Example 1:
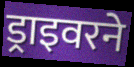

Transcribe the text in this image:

ड्राइवरने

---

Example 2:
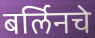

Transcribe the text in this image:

बर्लिनचे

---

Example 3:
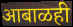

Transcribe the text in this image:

आबाळही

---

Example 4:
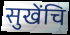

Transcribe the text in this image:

सुखेंचि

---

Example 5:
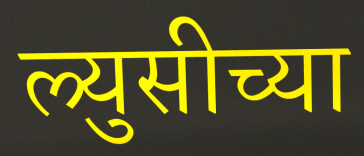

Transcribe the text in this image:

ल्युसीच्या